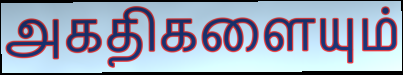
அகதிகளையும்